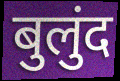
बुलुंद